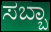
ಸಬ್ಬಾ